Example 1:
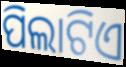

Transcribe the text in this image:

ପିଲାଟିଏ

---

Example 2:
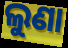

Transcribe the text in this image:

ଲୁଣା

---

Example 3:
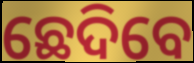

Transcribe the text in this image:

ଛେଦିବେ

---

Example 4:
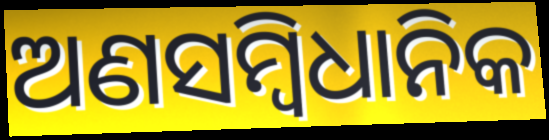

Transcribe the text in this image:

ଅଣସମ୍ବିଧାନିକ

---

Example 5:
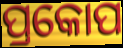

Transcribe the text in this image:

ପ୍ରକୋପ